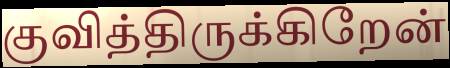
குவித்திருக்கிறேன்